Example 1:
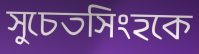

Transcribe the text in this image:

সুচেতসিংহকে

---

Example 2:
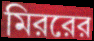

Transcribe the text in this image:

মিররের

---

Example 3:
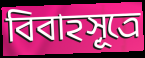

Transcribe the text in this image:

বিবাহসূত্রে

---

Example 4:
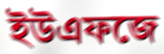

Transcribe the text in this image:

ইউএফজে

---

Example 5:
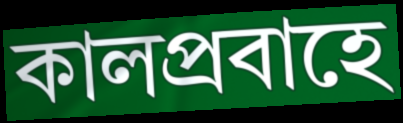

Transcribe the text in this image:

কালপ্রবাহে